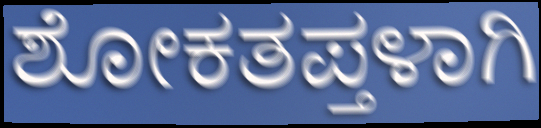
ಶೋಕತಪ್ತಳಾಗಿ